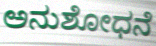
ಅನುಶೋಧನೆ